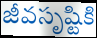
జీవసృష్టికి